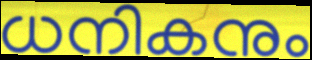
ധനികനും